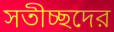
সতীচ্ছদের